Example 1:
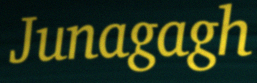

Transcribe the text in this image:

Junagagh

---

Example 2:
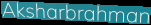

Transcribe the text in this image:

Aksharbrahman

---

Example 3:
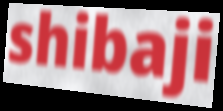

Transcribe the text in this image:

shibaji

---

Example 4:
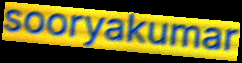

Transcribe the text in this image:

sooryakumar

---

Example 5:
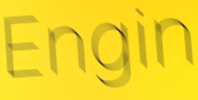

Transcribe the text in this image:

Engin